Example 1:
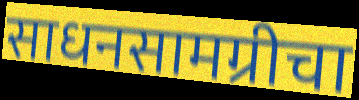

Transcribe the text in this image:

साधनसामग्रीचा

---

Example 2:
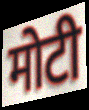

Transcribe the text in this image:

मोटी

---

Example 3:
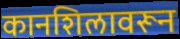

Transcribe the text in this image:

कानशिलावरून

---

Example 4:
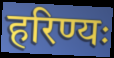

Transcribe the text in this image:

हरिण्यः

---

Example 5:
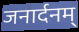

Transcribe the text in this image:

जनार्दनम्